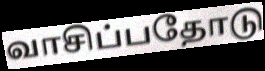
வாசிப்பதோடு